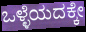
ಒಳ್ಳೆಯದಕ್ಕೇ